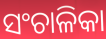
ସଂଚାଳିକା